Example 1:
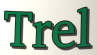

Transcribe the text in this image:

Trel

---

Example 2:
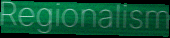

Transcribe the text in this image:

Regionalism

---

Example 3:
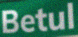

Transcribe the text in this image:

Betul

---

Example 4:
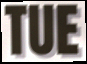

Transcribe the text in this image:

TUE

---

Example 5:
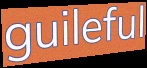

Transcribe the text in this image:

guileful